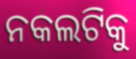
ନକଲଟିକୁ